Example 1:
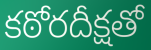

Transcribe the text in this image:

కఠోరదీక్షతో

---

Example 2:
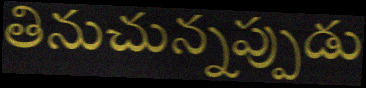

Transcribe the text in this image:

తినుచున్నప్పుడు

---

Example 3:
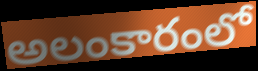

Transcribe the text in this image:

అలంకారంలో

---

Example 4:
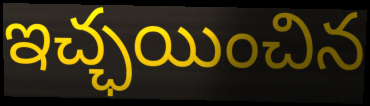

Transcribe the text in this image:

ఇచ్ఛయించిన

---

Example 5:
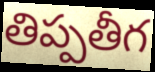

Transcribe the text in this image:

తిప్పతీగ